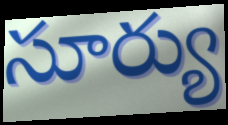
సూర్యు